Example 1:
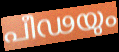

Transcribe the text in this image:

പീഢയും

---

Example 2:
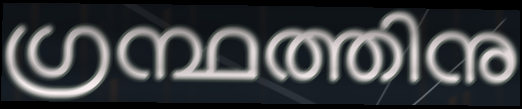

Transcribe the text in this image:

ഗ്രന്ഥത്തിനു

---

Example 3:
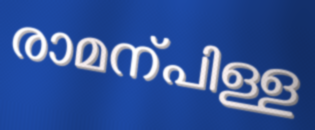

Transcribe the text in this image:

രാമന്പിള്ള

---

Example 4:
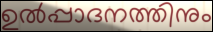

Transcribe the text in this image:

ഉൽപ്പാദനത്തിനും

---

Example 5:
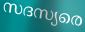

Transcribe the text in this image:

സദസ്യരെ